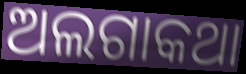
ଅଲଗାକଥା